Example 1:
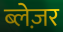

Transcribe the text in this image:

ब्लेज़र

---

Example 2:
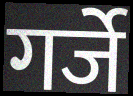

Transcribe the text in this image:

गर्जे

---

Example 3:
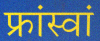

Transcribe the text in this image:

फ्रांस्वां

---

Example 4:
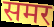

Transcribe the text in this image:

समर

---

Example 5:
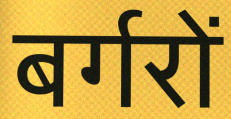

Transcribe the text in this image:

बर्गरों